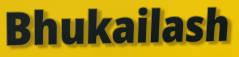
Bhukailash